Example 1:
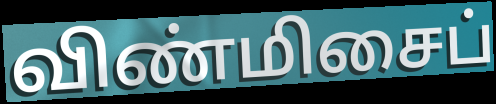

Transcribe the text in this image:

விண்மிசைப்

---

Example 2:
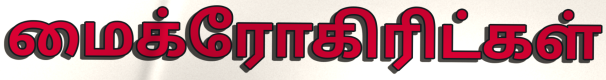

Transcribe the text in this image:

மைக்ரோகிரிட்கள்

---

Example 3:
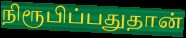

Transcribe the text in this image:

நிரூபிப்பதுதான்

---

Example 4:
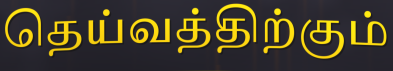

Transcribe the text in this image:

தெய்வத்திற்கும்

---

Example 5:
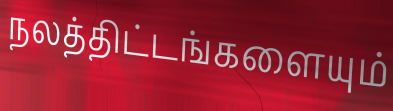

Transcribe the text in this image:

நலத்திட்டங்களையும்